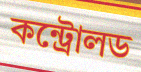
কন্ট্রোলড